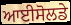
ਆਈਸੋਲਡੇ